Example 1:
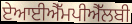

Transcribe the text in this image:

ਏਆਈਐੱਮਪੀਐੱਲਬੀ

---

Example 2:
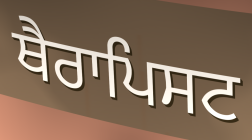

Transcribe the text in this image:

ਥੈਰਾਪਿਸਟ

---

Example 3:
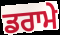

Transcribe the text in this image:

ਡਰਾਮੇ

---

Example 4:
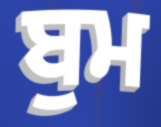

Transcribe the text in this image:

ਬੁਮ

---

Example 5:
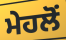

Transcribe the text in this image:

ਮੇਹਲੋਂ